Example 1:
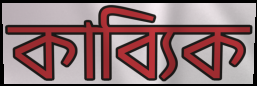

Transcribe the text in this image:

কাব্যিক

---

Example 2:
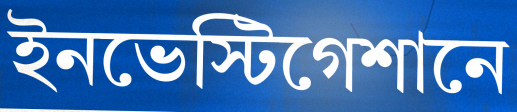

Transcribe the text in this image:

ইনভেস্টিগেশানে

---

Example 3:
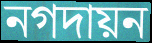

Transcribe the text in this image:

নগদায়ন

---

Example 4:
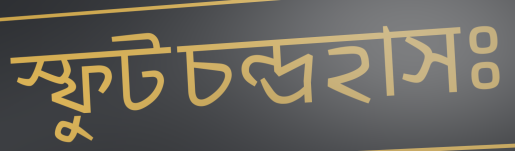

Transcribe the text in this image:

স্ফুটচন্দ্রহাসঃ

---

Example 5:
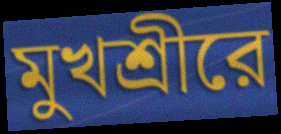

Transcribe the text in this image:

মুখশ্রীরে